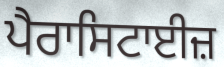
ਪੈਰਾਸਿਟਾਈਜ਼